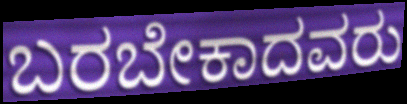
ಬರಬೇಕಾದವರು